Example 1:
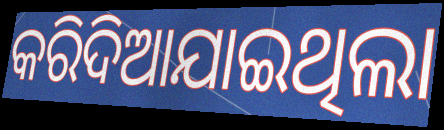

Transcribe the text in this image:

କରିଦିଆଯାଇଥିଲା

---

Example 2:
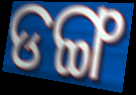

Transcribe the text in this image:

ଡଙ୍ଗ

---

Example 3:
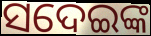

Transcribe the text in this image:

ସଦେଇଙ୍କ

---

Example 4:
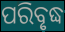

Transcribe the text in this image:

ପରିବୃଦ୍ଧ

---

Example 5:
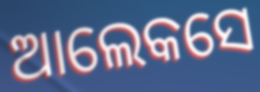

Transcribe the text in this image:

ଆଲେକସେ